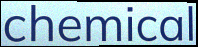
chemical